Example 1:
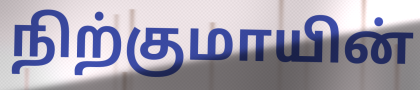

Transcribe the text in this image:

நிற்குமாயின்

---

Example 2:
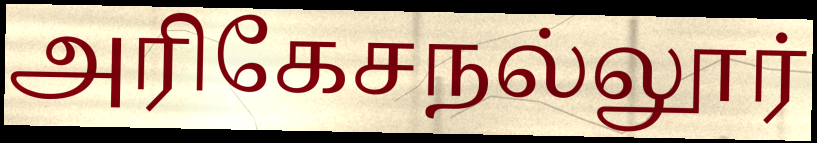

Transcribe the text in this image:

அரிகேசநல்லூர்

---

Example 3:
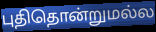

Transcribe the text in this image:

புதிதொன்றுமல்ல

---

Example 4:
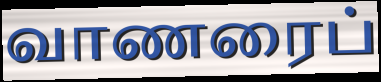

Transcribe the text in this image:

வாணரைப்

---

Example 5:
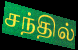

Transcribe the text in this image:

சந்தில்